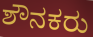
ಶೌನಕರು